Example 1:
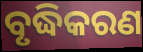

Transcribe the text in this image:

ବୃଦ୍ଧିକରଣ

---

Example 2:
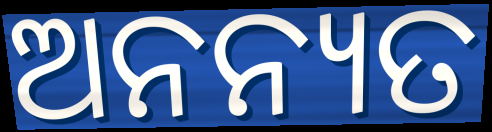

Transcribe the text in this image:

ଅନନ୍ୟତ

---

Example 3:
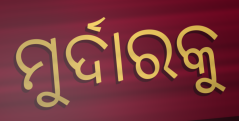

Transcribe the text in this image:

ମୁର୍ଦାରକୁ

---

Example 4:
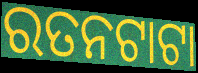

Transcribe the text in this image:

ରତନଟାଟା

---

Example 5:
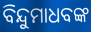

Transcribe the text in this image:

ବିନ୍ଦୁମାଧବଙ୍କ